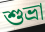
শুভ্রা